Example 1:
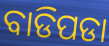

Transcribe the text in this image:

ବାଡିପଡା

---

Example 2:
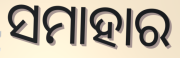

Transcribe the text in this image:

ସମାହାର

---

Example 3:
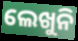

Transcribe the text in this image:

ଲେଖୁନି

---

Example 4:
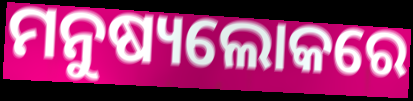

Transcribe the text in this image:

ମନୁଷ୍ୟଲୋକରେ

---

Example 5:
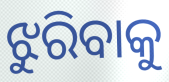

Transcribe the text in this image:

ଝୁରିବାକୁ